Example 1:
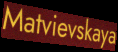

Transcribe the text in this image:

Matvievskaya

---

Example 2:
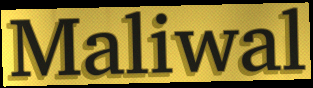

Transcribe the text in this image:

Maliwal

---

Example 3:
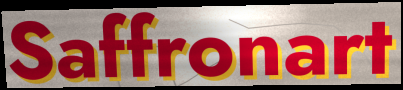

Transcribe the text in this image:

Saffronart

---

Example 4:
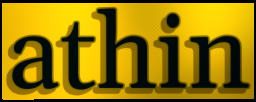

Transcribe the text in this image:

athin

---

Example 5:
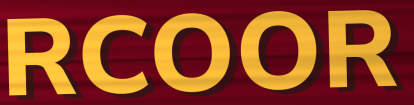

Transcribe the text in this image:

RCOOR